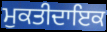
ਮੁਕਤੀਦਾਇਕ